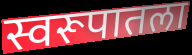
स्वरूपातला